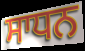
ਸਾਧਨ